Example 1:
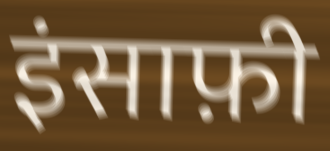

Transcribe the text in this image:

इंसाफ़ी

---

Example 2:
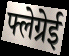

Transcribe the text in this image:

फ्लेग्रेई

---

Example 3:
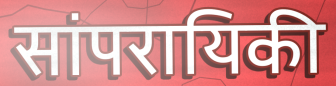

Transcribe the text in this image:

सांपरायिकी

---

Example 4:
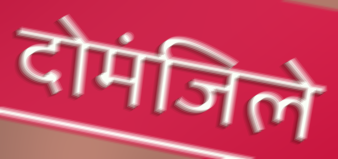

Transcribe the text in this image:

दोमंजिले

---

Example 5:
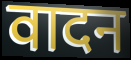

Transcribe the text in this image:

वादन